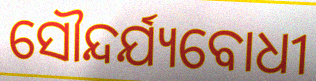
ସୌନ୍ଦର୍ଯ୍ୟବୋଧୀ